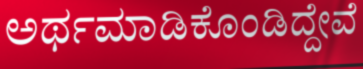
ಅರ್ಥಮಾಡಿಕೊಂಡಿದ್ದೇವೆ